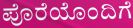
ಪೊರೆಯೊಂದಿಗೆ